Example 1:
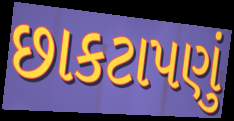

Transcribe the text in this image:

છાકટાપણું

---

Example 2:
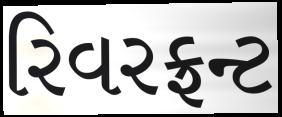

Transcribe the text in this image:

રિવરફ્રન્ટ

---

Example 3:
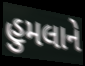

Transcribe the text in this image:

હુમલાને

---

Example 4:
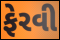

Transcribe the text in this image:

ફેરવી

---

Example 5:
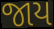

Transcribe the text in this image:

જાય